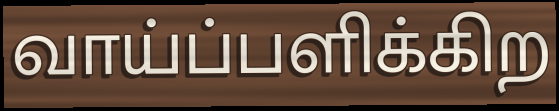
வாய்ப்பளிக்கிற